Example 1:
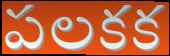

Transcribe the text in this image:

పలకక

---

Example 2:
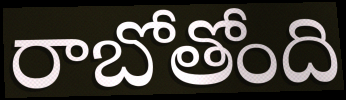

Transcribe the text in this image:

రాబోతోంది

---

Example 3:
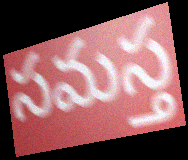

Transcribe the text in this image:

సమస్త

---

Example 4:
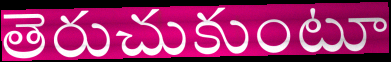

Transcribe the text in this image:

తెరుచుకుంటూ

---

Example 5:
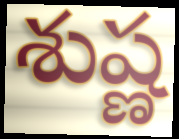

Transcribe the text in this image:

శుష్ణ